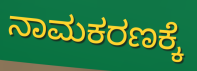
ನಾಮಕರಣಕ್ಕೆ